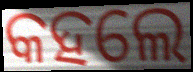
କହଲେ